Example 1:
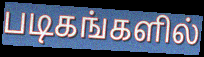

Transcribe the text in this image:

படிகங்களில்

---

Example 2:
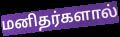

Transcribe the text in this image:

மனிதர்களால்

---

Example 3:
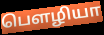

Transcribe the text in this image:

பௌழியா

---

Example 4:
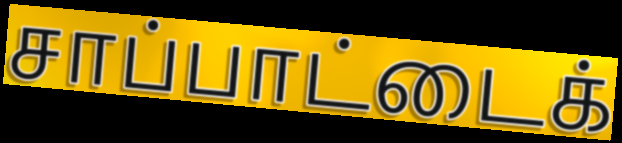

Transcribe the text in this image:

சாப்பாட்டைக்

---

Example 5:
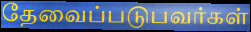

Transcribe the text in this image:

தேவைப்படுபவர்கள்